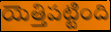
యెత్తిపట్టింది